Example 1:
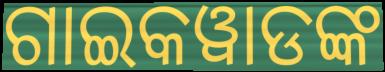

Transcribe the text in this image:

ଗାଇକୱାଡଙ୍କ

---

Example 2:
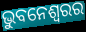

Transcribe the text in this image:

ଭୁବନେଶ୍ଵରର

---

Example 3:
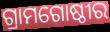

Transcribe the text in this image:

ଗ୍ରାମଗୋଷ୍ଠୀର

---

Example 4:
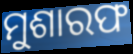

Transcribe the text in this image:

ମୁଶାରଫ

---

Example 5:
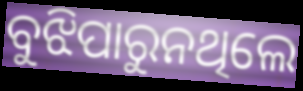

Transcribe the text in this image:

ବୁଝିପାରୁନଥିଲେ